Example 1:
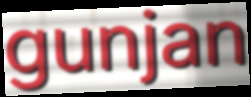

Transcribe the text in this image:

gunjan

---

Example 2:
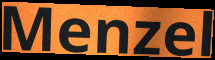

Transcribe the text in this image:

Menzel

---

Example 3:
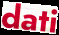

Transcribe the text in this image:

dati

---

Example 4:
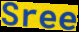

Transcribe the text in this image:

Sree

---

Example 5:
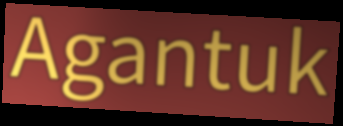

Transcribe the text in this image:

Agantuk